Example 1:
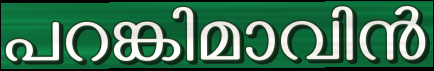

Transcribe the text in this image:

പറങ്കിമാവിൻ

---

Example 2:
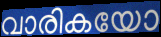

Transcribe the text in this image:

വാരികയോ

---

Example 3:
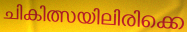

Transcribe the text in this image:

ചികിത്സയിലിരിക്കെ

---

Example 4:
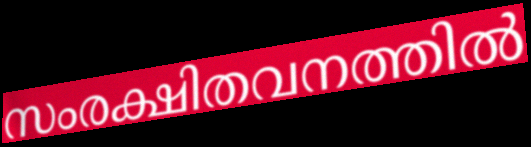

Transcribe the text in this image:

സംരക്ഷിതവനത്തിൽ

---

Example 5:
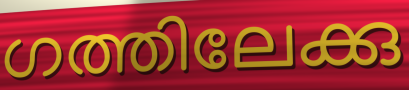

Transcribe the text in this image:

ഗത്തിലേക്കു